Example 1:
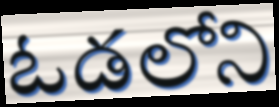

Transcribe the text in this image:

ఓడలోని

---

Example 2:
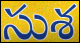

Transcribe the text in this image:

సుశ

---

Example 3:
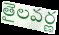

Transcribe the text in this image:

తైలవర్ణ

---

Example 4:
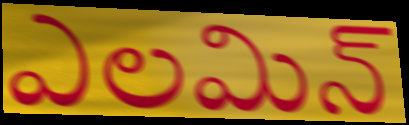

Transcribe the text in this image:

ఎలమిన్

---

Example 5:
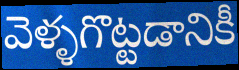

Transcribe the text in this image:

వెళ్ళగొట్టడానికీ